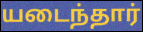
யடைந்தார்